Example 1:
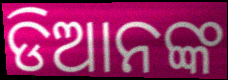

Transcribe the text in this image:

ଡିଆନଙ୍କ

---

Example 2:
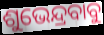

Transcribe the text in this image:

ଶୁଭେନ୍ଦ୍ରବାବୁ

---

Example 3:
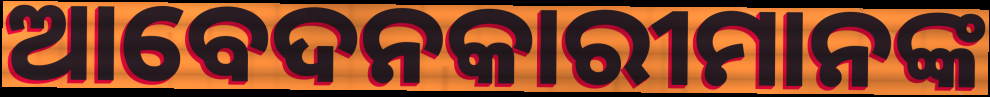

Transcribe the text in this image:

ଆବେଦନକାରୀମାନଙ୍କ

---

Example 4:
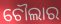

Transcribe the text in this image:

ଚୌଲାର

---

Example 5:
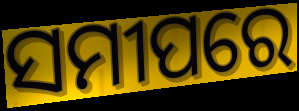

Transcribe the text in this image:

ସମୀପରେ